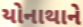
યોનાથાને